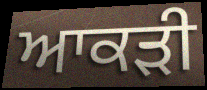
ਆਕੜੀ